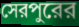
সেরপুরের